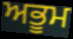
ਅਭੂਮ